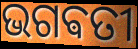
ଭଗଵତୀ